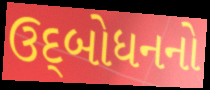
ઉદ્‌બોધનનો